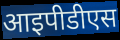
आइपीडीएस